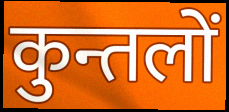
कुन्तलों